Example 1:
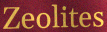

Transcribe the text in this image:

Zeolites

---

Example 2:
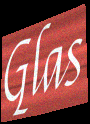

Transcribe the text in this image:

Glas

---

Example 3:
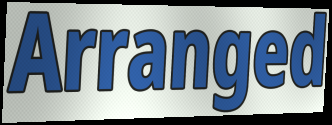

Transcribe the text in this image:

Arranged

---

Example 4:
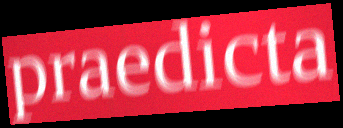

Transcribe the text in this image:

praedicta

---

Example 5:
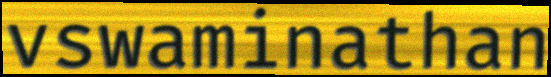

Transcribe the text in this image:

vswaminathan